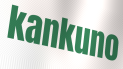
kankuno